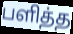
பளித்த